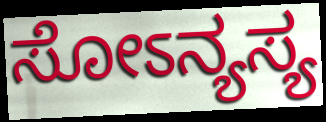
ಸೋಽನ್ಯಸ್ಯ